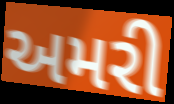
અમરી